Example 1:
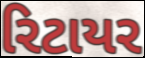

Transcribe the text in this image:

રિટાયર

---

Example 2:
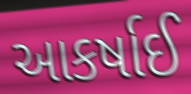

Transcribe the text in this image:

આકર્ષાઈ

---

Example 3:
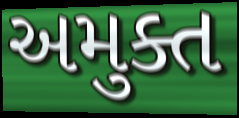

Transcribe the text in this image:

અમુક્ત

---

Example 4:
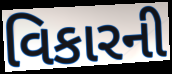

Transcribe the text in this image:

વિકારની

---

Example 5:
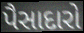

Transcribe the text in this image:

પૈસાદારો